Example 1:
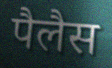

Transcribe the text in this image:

पैलैस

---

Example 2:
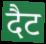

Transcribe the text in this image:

दैट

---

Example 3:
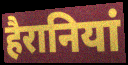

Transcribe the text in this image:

हैरानियां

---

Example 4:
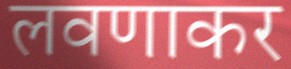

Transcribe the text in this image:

लवणाकर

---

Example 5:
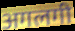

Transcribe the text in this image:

अगलगी